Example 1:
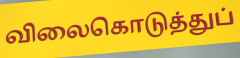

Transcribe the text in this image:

விலைகொடுத்துப்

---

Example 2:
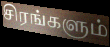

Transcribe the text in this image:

சிரங்களும்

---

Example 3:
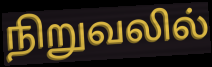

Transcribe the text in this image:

நிறுவலில்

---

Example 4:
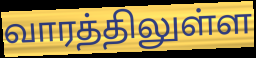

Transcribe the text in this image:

வாரத்திலுள்ள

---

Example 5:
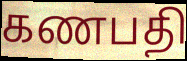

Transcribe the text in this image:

கணபதி